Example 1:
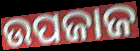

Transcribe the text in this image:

ଉପଜାଜ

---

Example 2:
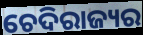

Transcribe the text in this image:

ଚେଦିରାଜ୍ୟର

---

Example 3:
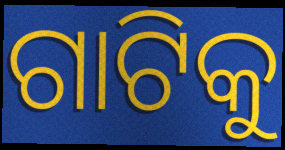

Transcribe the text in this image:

ଗାଟିକୁ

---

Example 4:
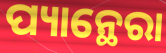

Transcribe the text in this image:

ପ୍ୟାନ୍ଥେରା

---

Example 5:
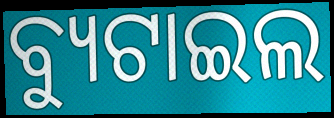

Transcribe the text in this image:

ବ୍ୟୁଟାଇଲ